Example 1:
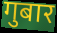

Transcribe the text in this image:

गुबार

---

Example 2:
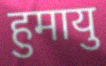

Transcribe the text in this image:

हुमायु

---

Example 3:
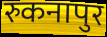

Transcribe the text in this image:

रुकनापुर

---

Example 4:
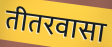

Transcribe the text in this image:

तीतरवासा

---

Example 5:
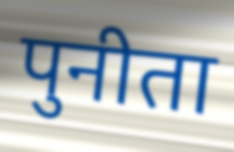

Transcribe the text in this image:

पुनीता